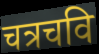
चत्रचवि